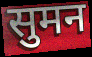
सुमन